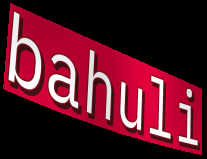
bahuli